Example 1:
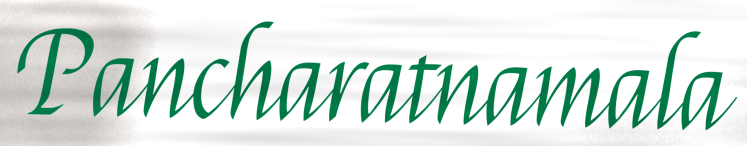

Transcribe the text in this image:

Pancharatnamala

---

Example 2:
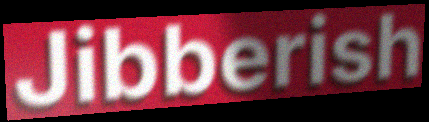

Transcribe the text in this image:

Jibberish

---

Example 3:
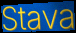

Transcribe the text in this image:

Stava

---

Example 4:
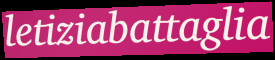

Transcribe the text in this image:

letiziabattaglia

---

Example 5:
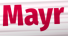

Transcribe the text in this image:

Mayr